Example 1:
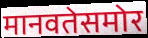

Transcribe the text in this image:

मानवतेसमोर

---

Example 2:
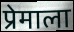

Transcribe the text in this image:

प्रेमाला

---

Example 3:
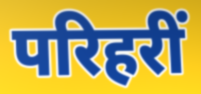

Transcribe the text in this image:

परिहरीं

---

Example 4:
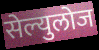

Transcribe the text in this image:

सेल्युलोज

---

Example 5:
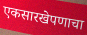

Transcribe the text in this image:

एकसारखेपणाचा